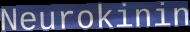
Neurokinin